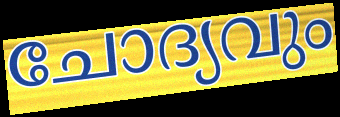
ചോദ്യവും